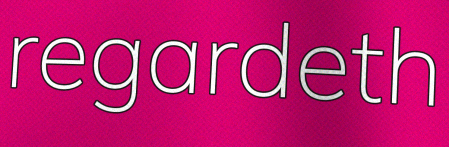
regardeth